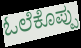
ಓಲೆಕೊಪ್ಪು